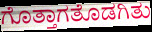
ಗೊತ್ತಾಗತೊಡಗಿತು